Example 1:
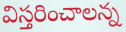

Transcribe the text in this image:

విస్తరించాలన్న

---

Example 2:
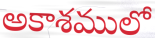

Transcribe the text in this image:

అకాశములో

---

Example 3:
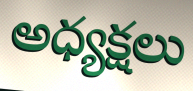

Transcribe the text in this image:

అధ్యక్షలు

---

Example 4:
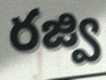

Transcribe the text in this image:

రజ్వి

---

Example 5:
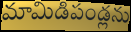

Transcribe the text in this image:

మామిడిపండ్లను